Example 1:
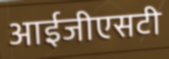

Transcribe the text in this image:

आईजीएसटी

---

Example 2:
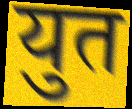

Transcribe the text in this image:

युत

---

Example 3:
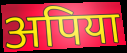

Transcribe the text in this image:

अपिया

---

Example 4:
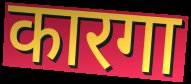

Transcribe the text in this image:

कारगा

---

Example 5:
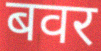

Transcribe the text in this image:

बवर